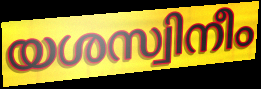
യശസ്വിനീം